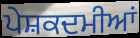
ਪੇਸ਼ਕਦਮੀਆਂ